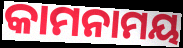
କାମନାମୟ